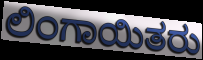
ಲಿಂಗಾಯಿತರು